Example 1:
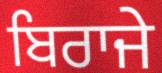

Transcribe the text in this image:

ਬਿਰਾਜੇ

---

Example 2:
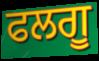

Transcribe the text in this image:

ਫਲਗੂ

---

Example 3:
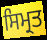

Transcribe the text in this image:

ਸਿਮ੍ਰਤ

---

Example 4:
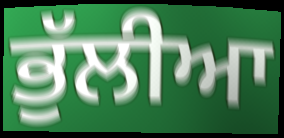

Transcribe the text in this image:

ਭੁੱਲੀਆ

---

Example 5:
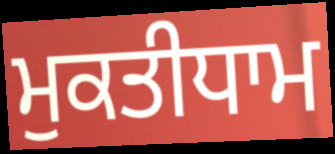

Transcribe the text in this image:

ਮੁਕਤੀਧਾਮ